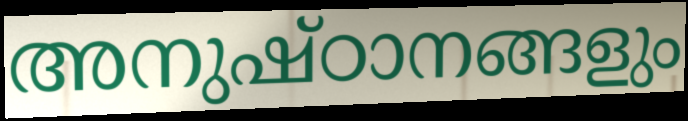
അനുഷ്ഠാനങ്ങളും